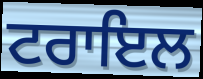
ਟਰਾਇਲ